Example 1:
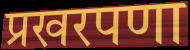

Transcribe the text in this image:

प्रखरपणा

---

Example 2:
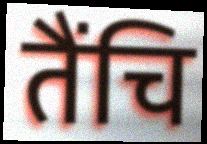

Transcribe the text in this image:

तैंचि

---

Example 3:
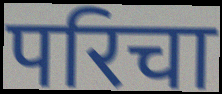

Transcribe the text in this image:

परिचा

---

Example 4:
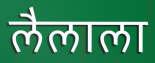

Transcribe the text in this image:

लैलाला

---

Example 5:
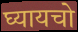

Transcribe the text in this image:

घ्यायचो